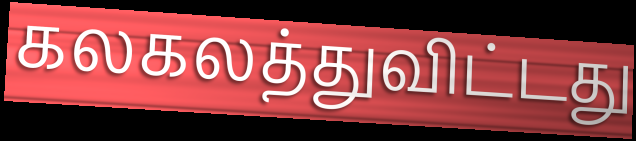
கலகலத்துவிட்டது